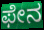
ಫೇನ